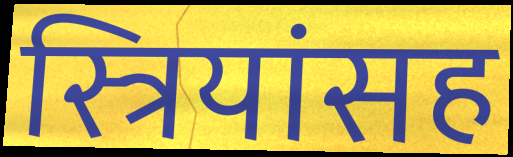
स्त्रियांसह